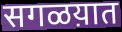
सगळय़ात